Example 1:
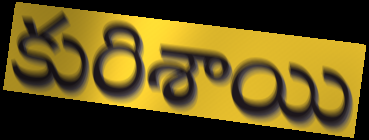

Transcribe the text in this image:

కురిశాయి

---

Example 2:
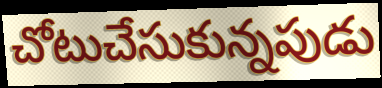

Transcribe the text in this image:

చోటుచేసుకున్నపుడు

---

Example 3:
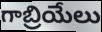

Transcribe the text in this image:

గాబ్రియేలు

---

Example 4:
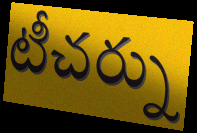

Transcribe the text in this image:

టీచర్ను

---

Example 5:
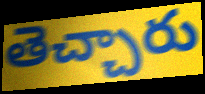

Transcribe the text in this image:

తెచ్చారు